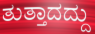
ತುತ್ತಾದದ್ದು